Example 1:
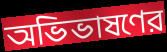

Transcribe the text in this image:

অভিভাষণের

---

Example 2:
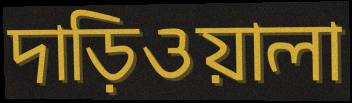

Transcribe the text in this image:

দাড়িওয়ালা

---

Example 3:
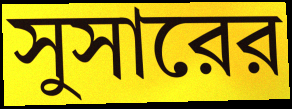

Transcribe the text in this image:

সুসারের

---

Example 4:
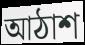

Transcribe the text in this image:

আঠাশ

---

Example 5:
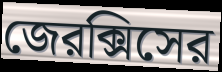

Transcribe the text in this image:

জেরক্সিসের